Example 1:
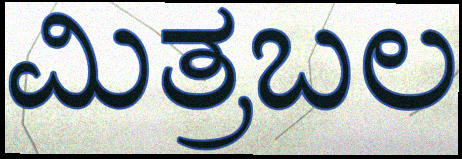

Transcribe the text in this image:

ಮಿತ್ರಬಲ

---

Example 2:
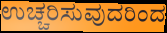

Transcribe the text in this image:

ಉಚ್ಚರಿಸುವುದರಿಂದ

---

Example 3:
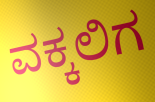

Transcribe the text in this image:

ವಕ್ಕಲಿಗ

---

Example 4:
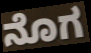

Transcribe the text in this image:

ನೊಗ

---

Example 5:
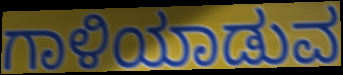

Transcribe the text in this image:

ಗಾಳಿಯಾಡುವ